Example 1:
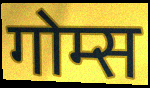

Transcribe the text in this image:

गोम्स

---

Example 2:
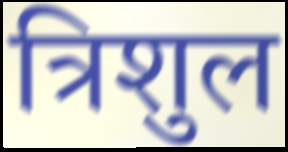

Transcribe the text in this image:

त्रिशुल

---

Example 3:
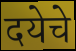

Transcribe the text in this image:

दयेचे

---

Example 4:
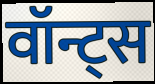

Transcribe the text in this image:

वॉन्ट्स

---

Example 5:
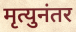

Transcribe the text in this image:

मृत्युनंतर